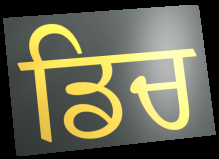
ਡਿਚ